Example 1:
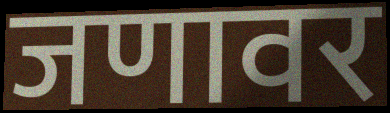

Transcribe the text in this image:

जणावर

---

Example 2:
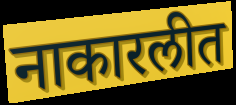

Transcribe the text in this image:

नाकारलीत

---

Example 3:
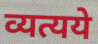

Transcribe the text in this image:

व्यत्यये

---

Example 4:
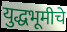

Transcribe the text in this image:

युद्धभूमीचे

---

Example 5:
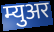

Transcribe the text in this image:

म्युअर